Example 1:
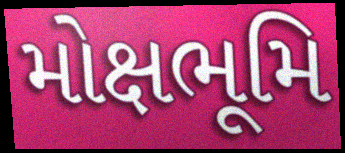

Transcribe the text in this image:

મોક્ષભૂમિ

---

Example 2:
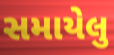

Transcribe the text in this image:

સમાયેલુ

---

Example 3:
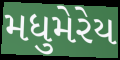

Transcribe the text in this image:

મધુમેરેય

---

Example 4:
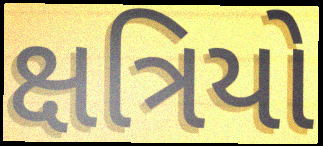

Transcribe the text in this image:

ક્ષત્રિયો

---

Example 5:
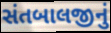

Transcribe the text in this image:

સંતબાલજીનું